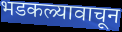
भडकल्यावाचून